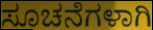
ಸೂಚನೆಗಳಾಗಿ